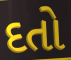
દતો